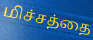
மிச்சத்தை